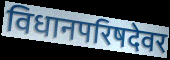
विधानपरिषदेवर